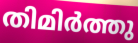
തിമിർത്തു